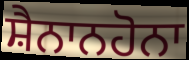
ਸ਼ੈਨਾਨਹੋਨਾ